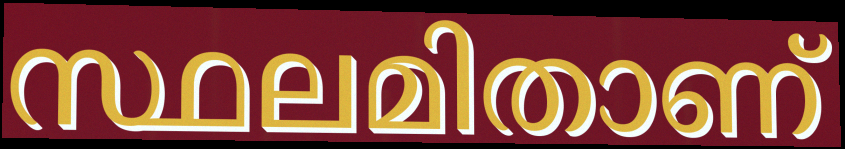
സ്ഥലമിതാണ്